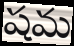
షమ